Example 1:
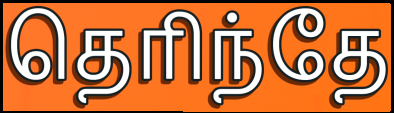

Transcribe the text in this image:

தெரிந்தே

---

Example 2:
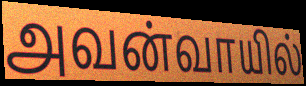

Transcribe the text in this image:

அவன்வாயில்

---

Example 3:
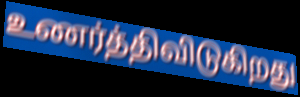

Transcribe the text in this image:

உணர்த்திவிடுகிறது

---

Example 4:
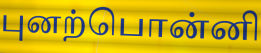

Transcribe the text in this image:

புனற்பொன்னி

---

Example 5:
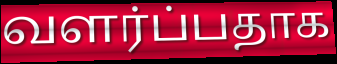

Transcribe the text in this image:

வளர்ப்பதாக